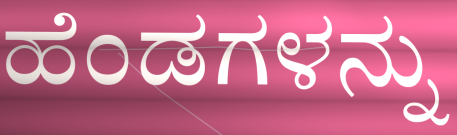
ಹೆಂಡಗಳನ್ನು